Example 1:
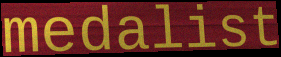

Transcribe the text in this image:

medalist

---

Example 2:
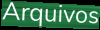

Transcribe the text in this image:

Arquivos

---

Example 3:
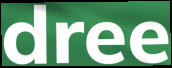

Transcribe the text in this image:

dree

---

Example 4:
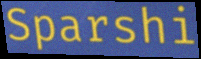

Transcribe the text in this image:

Sparshi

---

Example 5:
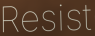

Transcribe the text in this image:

Resist